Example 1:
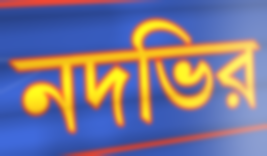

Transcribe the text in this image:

নদভির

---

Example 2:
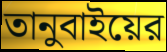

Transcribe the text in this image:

তানুবাইয়ের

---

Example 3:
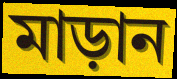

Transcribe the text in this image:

মাড়ান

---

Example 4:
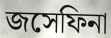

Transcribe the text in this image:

জসেফিনা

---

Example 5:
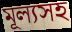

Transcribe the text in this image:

মূল্যসহ